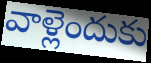
వాళ్లెందుకు